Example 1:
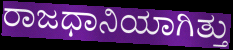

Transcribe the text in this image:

ರಾಜಧಾನಿಯಾಗಿತ್ತು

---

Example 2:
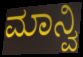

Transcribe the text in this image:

ಮಾನ್ವಿ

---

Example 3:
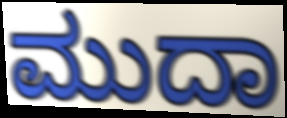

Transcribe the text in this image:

ಮುದಾ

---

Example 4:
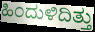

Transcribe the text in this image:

ಹಿಂದುಳಿದಿತ್ತು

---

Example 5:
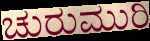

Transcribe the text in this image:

ಚುರುಮುರಿ